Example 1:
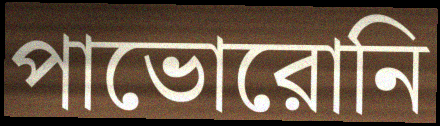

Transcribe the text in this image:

পাভোরোনি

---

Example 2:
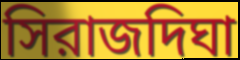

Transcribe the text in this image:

সিরাজদিঘা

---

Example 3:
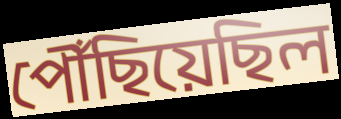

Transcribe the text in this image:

পৌঁছিয়েছিল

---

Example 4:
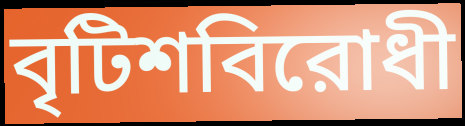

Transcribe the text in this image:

বৃটিশবিরোধী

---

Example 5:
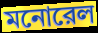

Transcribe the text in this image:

মনোরেল